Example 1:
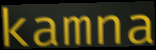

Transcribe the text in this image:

kamna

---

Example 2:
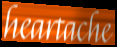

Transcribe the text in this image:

heartache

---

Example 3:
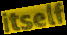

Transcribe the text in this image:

itself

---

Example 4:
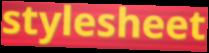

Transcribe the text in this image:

stylesheet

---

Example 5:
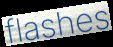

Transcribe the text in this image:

flashes